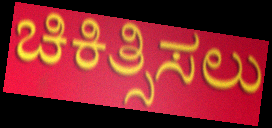
ಚಿಕಿತ್ಸಿಸಲು